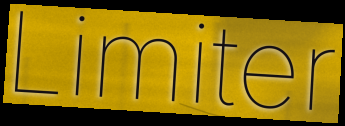
Limiter